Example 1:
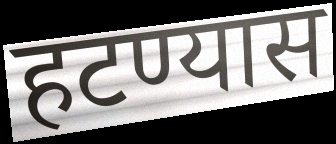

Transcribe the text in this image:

हटण्यास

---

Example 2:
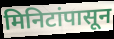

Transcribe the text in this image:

मिनिटांपासून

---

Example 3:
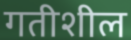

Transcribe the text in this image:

गतीशील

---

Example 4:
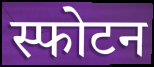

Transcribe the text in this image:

स्फोटन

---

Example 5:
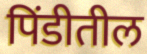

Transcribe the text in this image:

पिंडीतील